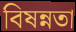
বিষন্নতা